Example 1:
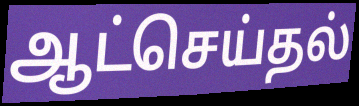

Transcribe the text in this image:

ஆட்செய்தல்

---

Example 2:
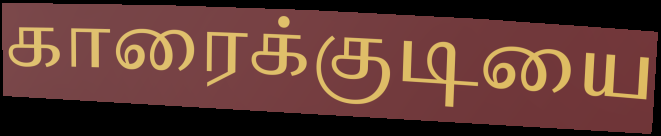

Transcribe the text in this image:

காரைக்குடியை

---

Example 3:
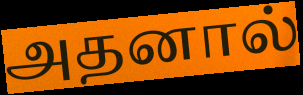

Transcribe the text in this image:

அதனால்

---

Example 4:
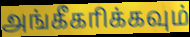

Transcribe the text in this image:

அங்கீகரிக்கவும்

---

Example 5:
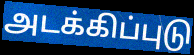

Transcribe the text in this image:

அடக்கிப்புடு